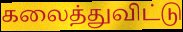
கலைத்துவிட்டு